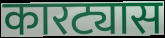
कारट्यास